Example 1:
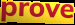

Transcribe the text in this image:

prove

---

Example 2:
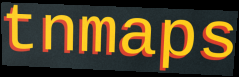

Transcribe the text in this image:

tnmaps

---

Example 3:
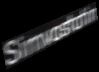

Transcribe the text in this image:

Simvastatin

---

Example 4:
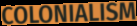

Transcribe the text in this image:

COLONIALISM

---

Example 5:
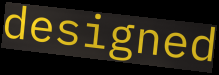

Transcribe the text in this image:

designed